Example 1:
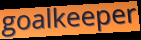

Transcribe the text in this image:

goalkeeper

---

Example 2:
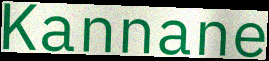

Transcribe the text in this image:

Kannane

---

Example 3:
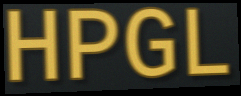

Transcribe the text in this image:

HPGL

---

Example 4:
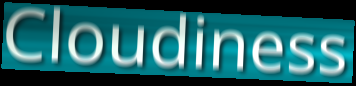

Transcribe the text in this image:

Cloudiness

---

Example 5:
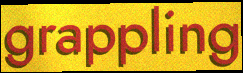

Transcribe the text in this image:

grappling